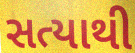
સત્યાથી